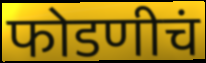
फोडणीचं